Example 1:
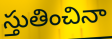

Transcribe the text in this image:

స్తుతించినా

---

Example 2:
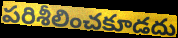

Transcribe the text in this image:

పరిశీలించకూడదు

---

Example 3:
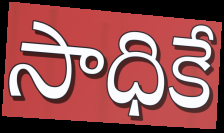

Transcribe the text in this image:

సాధికే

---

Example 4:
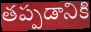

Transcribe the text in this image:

తప్పడానికి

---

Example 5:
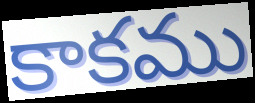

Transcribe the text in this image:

కాకము